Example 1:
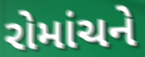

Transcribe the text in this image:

રોમાંચને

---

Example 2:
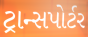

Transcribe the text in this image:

ટ્રાન્સપોર્ટર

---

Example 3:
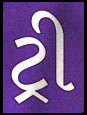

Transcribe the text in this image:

ટ્રી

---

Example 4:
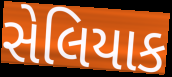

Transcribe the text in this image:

સેલિયાક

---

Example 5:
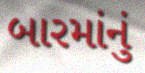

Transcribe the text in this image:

બારમાંનું